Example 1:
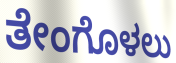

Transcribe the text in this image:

ತೇಂಗೊಳಲು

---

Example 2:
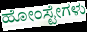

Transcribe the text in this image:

ಹೋಂಸ್ಟೇಗಳು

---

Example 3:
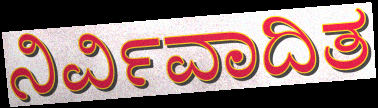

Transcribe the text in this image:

ನಿರ್ವಿವಾದಿತ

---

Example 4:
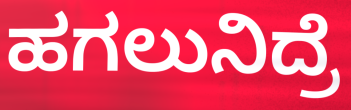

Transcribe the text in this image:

ಹಗಲುನಿದ್ರೆ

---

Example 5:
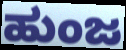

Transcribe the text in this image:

ಹುಂಜ